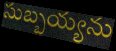
సుబ్బయ్యను